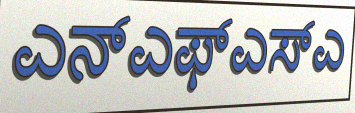
ಎನ್ಎಫ್ಎಸ್ಎ